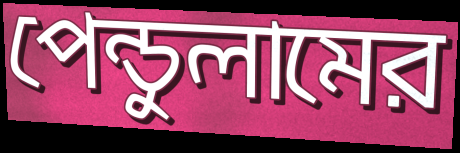
পেন্ডুলামের